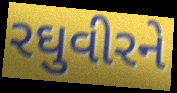
રઘુવીરને